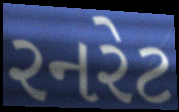
રનરેટ